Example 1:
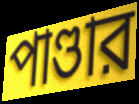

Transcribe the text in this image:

পাণ্ডার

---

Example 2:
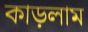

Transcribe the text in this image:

কাড়লাম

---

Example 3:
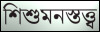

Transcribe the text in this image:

শিশুমনস্তত্ত্ব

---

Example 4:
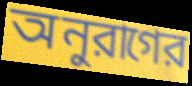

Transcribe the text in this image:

অনুরাগের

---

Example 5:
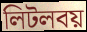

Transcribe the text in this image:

লিটলবয়